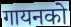
गायनको